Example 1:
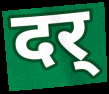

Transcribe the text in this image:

दर्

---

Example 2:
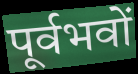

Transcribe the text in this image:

पूर्वभवों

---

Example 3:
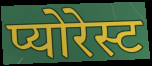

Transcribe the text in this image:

प्योरेस्ट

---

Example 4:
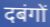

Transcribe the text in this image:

दबंगों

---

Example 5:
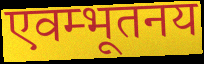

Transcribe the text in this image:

एवम्भूतनय